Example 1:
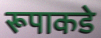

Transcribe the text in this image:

रूपाकडे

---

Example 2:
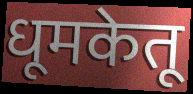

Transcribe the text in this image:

धूमकेतू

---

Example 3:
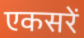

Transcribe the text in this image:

एकसरें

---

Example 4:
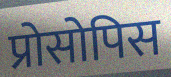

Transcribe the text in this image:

प्रोसोपिस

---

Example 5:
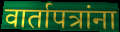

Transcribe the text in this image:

वार्तापत्रांना